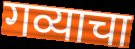
गव्याचा